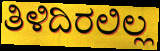
ತಿಳಿದಿರಲಿಲ್ಲ